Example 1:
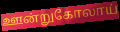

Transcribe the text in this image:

ஊன்றுகோலாய்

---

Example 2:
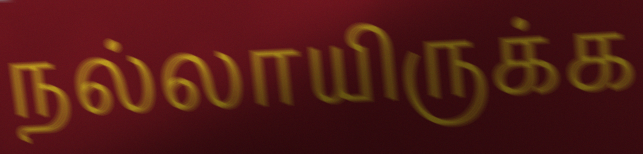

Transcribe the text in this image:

நல்லாயிருக்க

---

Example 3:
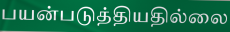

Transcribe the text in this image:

பயன்படுத்தியதில்லை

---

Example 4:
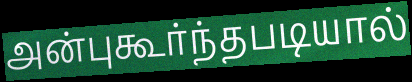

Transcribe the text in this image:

அன்புகூர்ந்தபடியால்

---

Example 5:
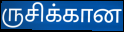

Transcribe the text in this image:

ருசிக்கான